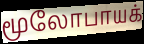
மூலோபாயக்